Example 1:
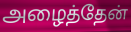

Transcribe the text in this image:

அழைத்தேன்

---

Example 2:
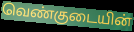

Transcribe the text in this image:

வெண்குடையின்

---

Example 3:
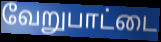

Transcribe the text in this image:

வேறுபாட்டை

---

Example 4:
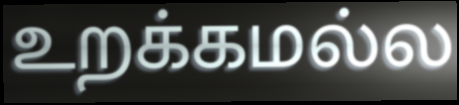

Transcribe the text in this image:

உறக்கமல்ல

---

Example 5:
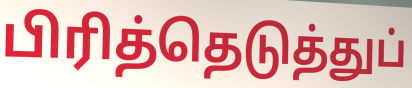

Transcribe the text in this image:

பிரித்தெடுத்துப்